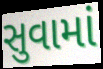
સુવામાં